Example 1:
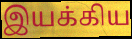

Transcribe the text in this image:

இயக்கிய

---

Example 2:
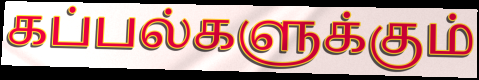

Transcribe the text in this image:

கப்பல்களுக்கும்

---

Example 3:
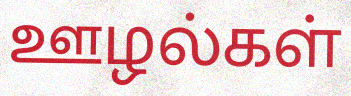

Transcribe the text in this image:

ஊழல்கள்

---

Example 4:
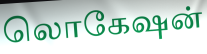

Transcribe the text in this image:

லொகேஷன்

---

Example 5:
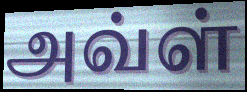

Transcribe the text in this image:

அவ்ள்